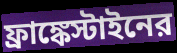
ফ্রাঙ্কেস্টাইনের